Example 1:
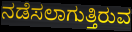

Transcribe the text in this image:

ನಡೆಸಲಾಗುತ್ತಿರುವ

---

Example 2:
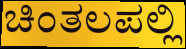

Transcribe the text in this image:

ಚಿಂತಲಪಲ್ಲಿ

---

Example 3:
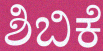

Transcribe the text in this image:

ಶಿಬಿಕೆ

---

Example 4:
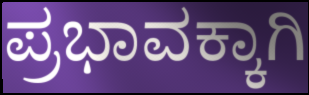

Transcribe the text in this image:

ಪ್ರಭಾವಕ್ಕಾಗಿ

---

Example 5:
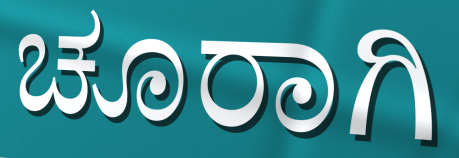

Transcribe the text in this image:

ಚೂರಾಗಿ